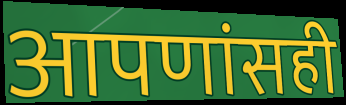
आपणांसही